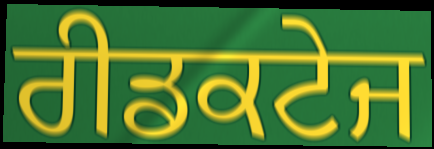
ਰੀਡਕਟੇਜ